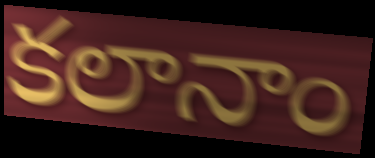
కలానాం